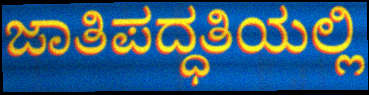
ಜಾತಿಪದ್ಧತಿಯಲ್ಲಿ